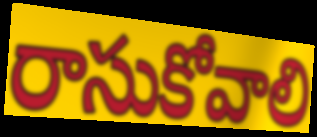
రాసుకోవాలి